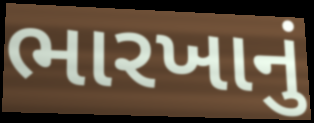
ભારખાનું